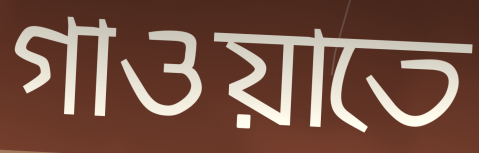
গাওয়াতে